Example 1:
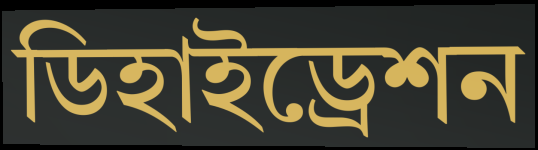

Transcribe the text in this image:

ডিহাইড্রেশন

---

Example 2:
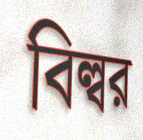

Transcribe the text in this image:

বিল্বর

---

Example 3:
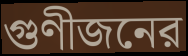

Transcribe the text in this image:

গুণীজনের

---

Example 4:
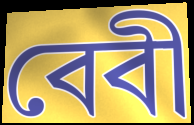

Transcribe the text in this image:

বেবী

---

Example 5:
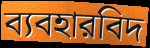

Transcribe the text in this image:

ব্যবহারবিদ